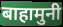
बाहामुनी